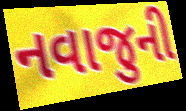
નવાજુની